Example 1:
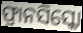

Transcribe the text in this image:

ଫ୍ରାନସିସ୍କୋ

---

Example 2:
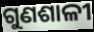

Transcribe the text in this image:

ଗୁଣଶାଳୀ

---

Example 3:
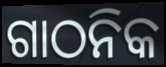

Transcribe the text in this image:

ଗାଠନିକ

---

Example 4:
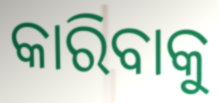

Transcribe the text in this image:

କାରିବାକୁ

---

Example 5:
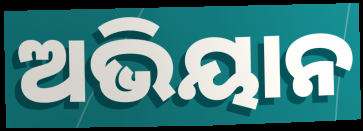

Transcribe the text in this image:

ଅଭିୟାନ